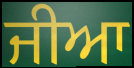
ਜੀਆ